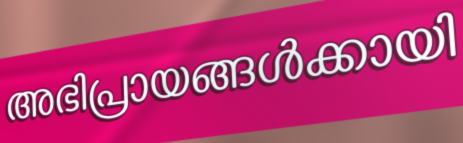
അഭിപ്രായങ്ങൾക്കായി